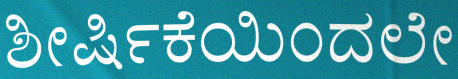
ಶೀರ್ಷಿಕೆಯಿಂದಲೇ